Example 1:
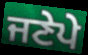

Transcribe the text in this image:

ਜਣੇਪੇ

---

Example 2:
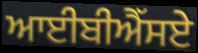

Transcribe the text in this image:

ਆਈਬੀਐੱਸਏ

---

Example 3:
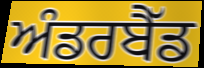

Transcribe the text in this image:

ਅੰਡਰਬੈੱਡ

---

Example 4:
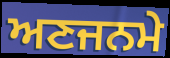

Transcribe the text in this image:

ਅਣਜਨਮੇ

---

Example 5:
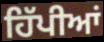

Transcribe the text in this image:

ਹਿੱਪੀਆਂ